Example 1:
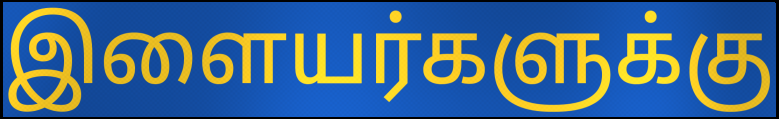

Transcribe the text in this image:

இளையர்களுக்கு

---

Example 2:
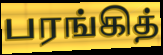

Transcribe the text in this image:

பரங்கித்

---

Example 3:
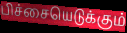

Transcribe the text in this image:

பிச்சையெடுக்கும்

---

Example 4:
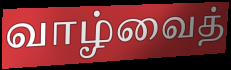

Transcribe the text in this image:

வாழ்வைத்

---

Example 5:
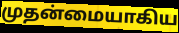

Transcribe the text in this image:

முதன்மையாகிய